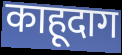
काहूदाग